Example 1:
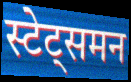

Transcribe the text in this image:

स्टेट्समन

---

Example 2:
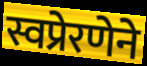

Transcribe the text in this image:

स्वप्रेरणेने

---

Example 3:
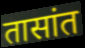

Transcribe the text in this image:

तासांत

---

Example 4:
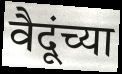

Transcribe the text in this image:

वैदूंच्या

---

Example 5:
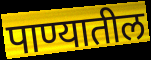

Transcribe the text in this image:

पाण्यातील